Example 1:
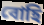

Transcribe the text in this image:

বোহি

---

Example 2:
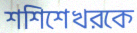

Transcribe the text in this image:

শশিশেখরকে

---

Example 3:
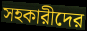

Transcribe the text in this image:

সহকারীদের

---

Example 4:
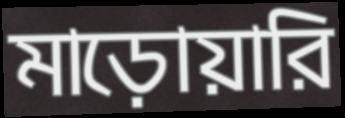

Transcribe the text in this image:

মাড়োয়ারি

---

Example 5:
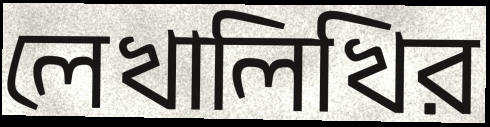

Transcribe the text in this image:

লেখালিখির